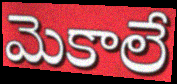
మెకాలే